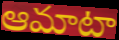
ఆమాటా